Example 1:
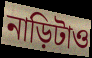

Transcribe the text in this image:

নাড়িটাও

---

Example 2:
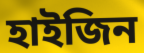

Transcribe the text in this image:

হাইজিন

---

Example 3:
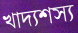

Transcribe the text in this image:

খাদ্যশস্য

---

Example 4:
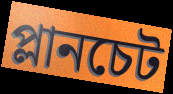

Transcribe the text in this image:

প্লানচেট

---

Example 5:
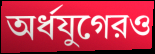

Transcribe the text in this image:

অর্ধযুগেরও